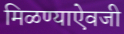
मिळण्याऐवजी